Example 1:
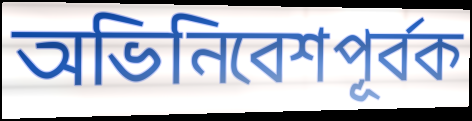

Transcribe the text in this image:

অভিনিবেশপূর্বক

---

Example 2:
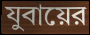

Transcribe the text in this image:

যুবায়ের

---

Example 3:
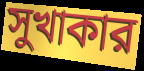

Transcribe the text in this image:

সুখাকার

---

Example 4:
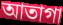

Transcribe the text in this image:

আতাগা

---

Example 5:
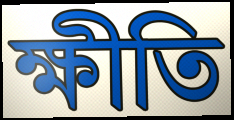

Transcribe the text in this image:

ক্ষীতি